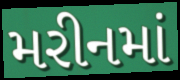
મરીનમાં